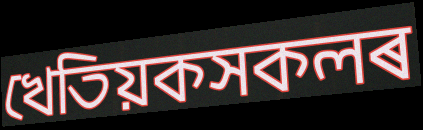
খেতিয়কসকলৰ